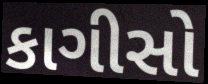
કાગીસો